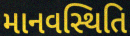
માનવસ્થિતિ